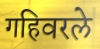
गहिवरले